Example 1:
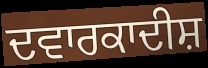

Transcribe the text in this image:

ਦਵਾਰਕਾਦੀਸ਼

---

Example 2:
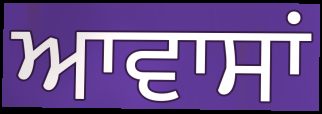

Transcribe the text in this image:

ਆਵਾਸਾਂ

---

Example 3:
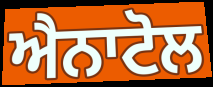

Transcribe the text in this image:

ਐਨਾਟੋਲ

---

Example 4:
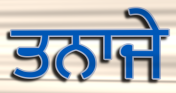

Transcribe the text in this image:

ਤਨਾਜੇ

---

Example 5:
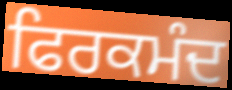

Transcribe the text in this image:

ਫਿਰਕਮੰਦ